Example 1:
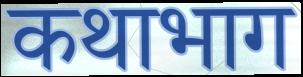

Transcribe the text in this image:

कथाभाग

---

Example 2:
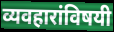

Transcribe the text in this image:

व्यवहारांविषयी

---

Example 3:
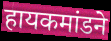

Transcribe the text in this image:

हायकमांडने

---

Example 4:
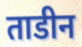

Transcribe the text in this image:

ताडीन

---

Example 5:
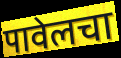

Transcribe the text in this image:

पावेलचा